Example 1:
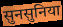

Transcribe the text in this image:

सुनसुनिया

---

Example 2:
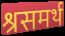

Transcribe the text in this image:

श्रसमर्थ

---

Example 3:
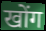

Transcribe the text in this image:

खोंग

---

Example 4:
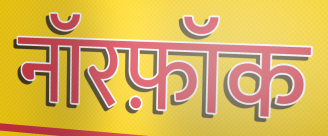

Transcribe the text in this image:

नॉरफ़ॉक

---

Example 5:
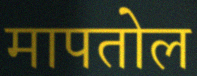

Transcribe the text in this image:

मापतोल